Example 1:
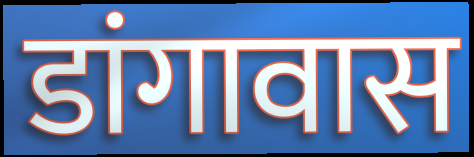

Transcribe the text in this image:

डांगावास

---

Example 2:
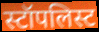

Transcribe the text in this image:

स्टॉपलिस्ट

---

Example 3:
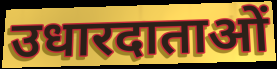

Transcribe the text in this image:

उधारदाताओं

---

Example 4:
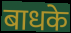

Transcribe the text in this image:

बाधके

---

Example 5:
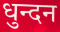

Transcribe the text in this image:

धुन्दन